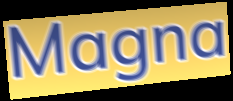
Magna